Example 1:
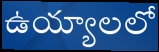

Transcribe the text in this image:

ఉయ్యాలలో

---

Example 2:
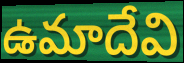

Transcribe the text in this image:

ఉమాదేవి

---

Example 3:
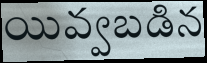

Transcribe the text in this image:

యివ్వబడిన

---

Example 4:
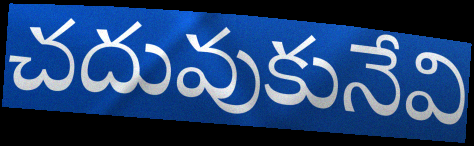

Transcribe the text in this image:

చదువుకునేవి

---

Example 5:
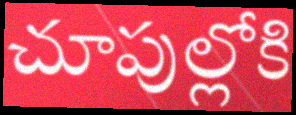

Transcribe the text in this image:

చూపుల్లోకి